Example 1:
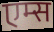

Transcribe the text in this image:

एम्स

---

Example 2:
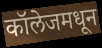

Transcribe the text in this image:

कॉलेजमधून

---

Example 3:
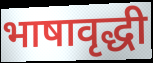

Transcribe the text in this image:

भाषावृद्धी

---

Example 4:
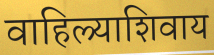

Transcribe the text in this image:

वाहिल्याशिवाय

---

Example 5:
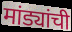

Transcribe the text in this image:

मांड्यांची